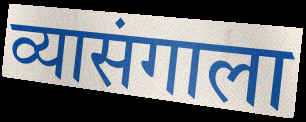
व्यासंगाला